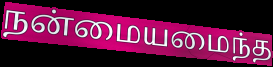
நன்மையமைந்த